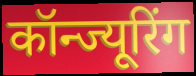
कॉन्ज्यूरिंग